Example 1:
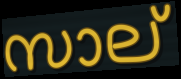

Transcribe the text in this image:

സാല്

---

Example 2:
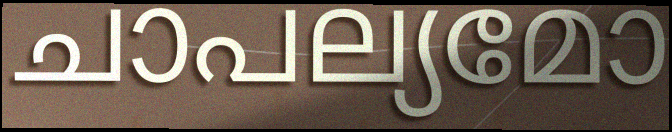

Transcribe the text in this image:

ചാപല്യമോ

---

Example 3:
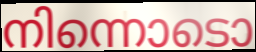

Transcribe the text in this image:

നിന്നൊടൊ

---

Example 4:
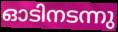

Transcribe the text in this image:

ഓടിനടന്നു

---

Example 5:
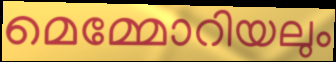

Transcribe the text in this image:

മെമ്മോറിയലും